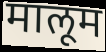
मालूम